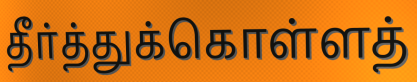
தீர்த்துக்கொள்ளத்